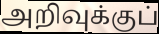
அறிவுக்குப்